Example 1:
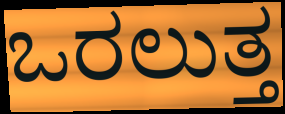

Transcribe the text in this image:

ಒರಲುತ್ತ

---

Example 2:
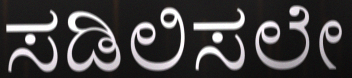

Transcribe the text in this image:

ಸಡಿಲಿಸಲೇ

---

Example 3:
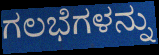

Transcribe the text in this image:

ಗಲಭೆಗಳನ್ನು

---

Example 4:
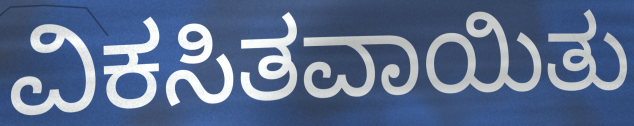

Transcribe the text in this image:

ವಿಕಸಿತವಾಯಿತು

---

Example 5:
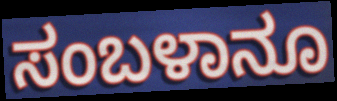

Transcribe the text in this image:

ಸಂಬಳಾನೂ